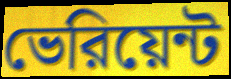
ভেরিয়েন্ট